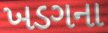
ખડગના